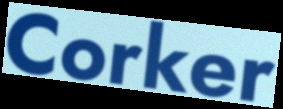
Corker